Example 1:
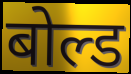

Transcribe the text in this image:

बोल्ड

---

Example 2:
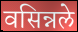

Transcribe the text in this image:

वसिन्नले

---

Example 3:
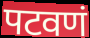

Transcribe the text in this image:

पटवणं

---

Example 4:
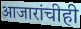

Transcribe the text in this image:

आजारांचीही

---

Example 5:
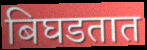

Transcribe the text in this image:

बिघडतात